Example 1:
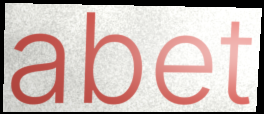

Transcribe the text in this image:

abet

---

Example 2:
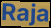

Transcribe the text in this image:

Raja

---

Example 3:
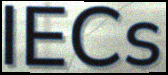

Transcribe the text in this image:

IECs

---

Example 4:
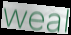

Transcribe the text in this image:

weal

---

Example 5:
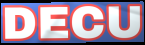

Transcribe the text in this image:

DECU